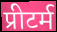
प्रीटर्म